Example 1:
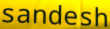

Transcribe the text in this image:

sandesh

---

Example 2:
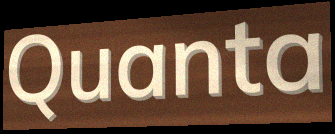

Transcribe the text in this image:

Quanta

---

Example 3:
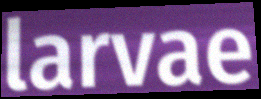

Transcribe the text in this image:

larvae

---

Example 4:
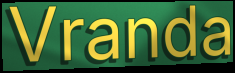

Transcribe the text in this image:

Vranda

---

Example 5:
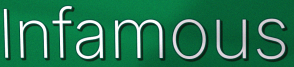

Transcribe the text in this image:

Infamous